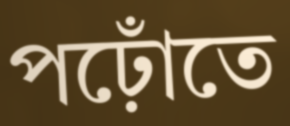
পঢ়োঁতে